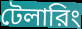
টেলারিং